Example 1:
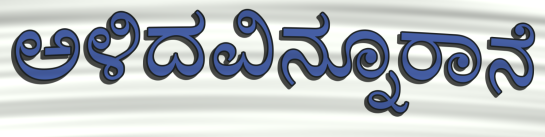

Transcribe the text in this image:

ಅಳಿದವಿನ್ನೂರಾನೆ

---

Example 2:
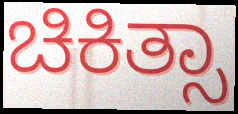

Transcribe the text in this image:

ಚಿಕಿತ್ಸಾ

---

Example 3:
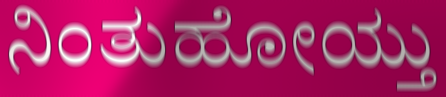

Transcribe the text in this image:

ನಿಂತುಹೋಯ್ತು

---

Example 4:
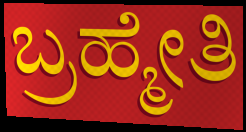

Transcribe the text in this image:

ಬ್ರಹ್ಮೇತಿ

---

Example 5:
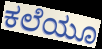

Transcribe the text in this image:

ಕಲೆಯೂ